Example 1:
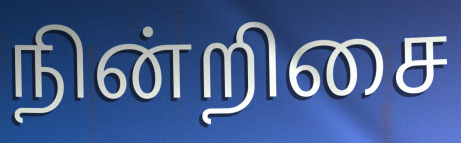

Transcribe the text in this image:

நின்றிசை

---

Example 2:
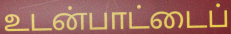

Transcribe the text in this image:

உடன்பாட்டைப்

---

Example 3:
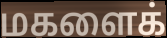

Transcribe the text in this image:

மகளைக்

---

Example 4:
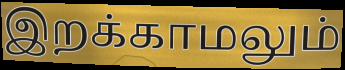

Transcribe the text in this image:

இறக்காமலும்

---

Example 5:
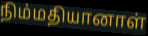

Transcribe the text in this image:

நிம்மதியானாள்